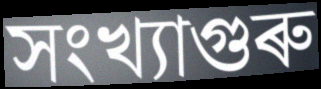
সংখ্যাগুৰু